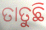
ତାତୁଛି